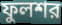
ফুলশর